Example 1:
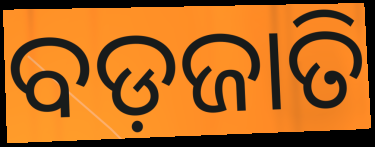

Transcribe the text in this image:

ବଡ଼ଜାତି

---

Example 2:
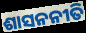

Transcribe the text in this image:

ଶାସନନୀତି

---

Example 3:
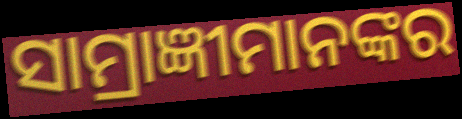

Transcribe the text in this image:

ସାମ୍ରାଜ୍ଞୀମାନଙ୍କର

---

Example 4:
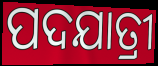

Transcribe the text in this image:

ପଦଯାତ୍ରୀ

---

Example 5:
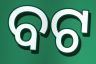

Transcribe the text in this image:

ବଟ